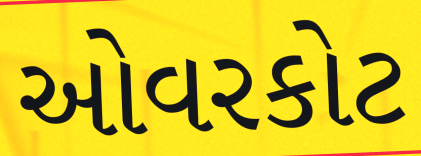
ઓવરકોટ